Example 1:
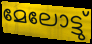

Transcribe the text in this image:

മേലോട്ടു്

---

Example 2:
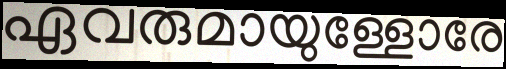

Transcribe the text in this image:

ഏവരുമായുള്ളോരേ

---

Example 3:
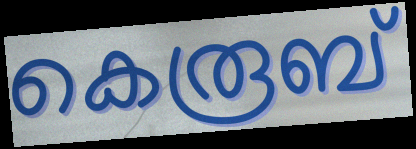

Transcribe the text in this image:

കെരൂബ്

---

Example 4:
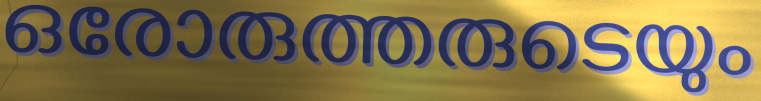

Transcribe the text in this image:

ഒരോരുത്തരുടെയും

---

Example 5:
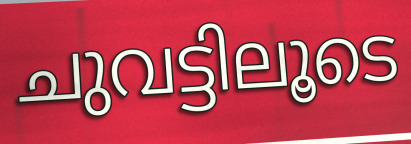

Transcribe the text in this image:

ചുവട്ടിലൂടെ